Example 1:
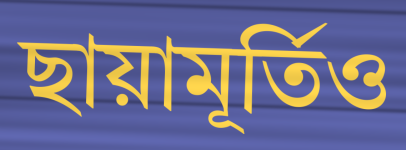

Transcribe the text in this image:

ছায়ামূর্তিও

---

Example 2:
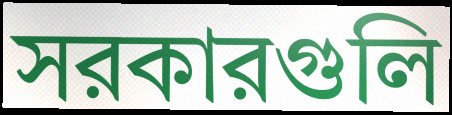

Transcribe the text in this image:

সরকারগুলি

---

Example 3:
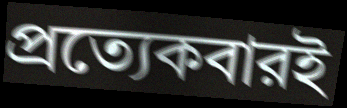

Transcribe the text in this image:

প্রত্যেকবারই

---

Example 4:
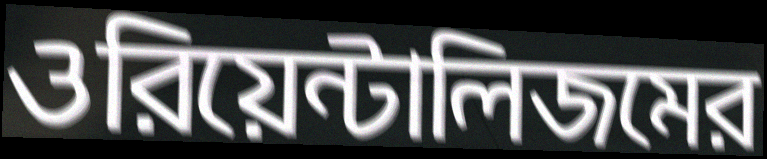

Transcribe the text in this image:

ওরিয়েন্টালিজমের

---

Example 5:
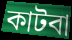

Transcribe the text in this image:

কাটবা